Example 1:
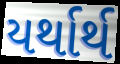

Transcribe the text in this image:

યર્થાર્થ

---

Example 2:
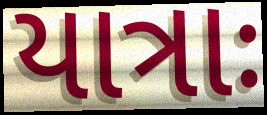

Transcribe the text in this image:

યાત્રાઃ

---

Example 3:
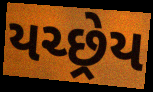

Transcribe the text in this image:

યચ્છ્રેય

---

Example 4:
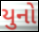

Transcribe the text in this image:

યુનો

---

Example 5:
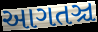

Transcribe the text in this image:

આગતઞ્ચ